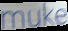
muke